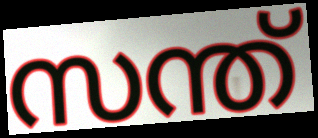
സന്ത്